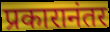
प्रकारानंतर